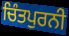
ਚਿੰਤਪੁਰਨੀ